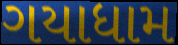
ગયાધામ